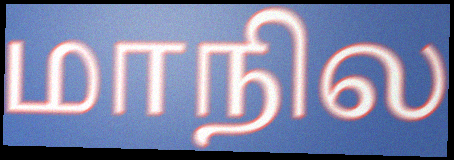
மாநில